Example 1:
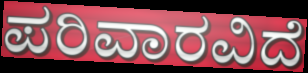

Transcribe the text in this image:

ಪರಿವಾರವಿದೆ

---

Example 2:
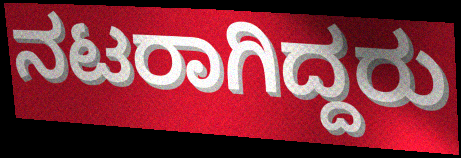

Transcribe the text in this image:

ನಟರಾಗಿದ್ದರು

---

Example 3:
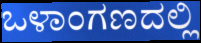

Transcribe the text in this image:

ಒಳಾಂಗಣದಲ್ಲಿ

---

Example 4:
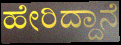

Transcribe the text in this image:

ಹೇರಿದ್ದಾನೆ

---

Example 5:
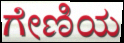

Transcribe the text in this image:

ಗೇಣಿಯ